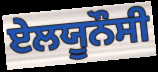
ਏਲਯੂਨੌਸੀ